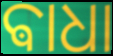
ଵାଧା